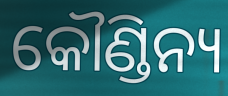
କୌଣ୍ଡିନ୍ୟ